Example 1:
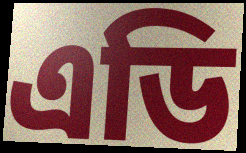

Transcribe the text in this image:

এডি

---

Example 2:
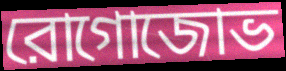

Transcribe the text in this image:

রোগোজোভ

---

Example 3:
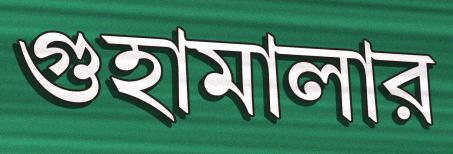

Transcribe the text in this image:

গুহামালার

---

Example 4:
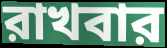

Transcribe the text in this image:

রাখবার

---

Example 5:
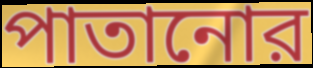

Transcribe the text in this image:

পাতানোর